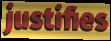
justifies